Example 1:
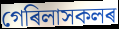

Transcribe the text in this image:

গেৰিলাসকলৰ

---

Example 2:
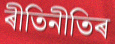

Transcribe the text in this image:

ৰীতিনীতিৰ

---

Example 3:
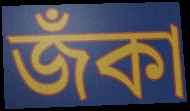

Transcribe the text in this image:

জঁকা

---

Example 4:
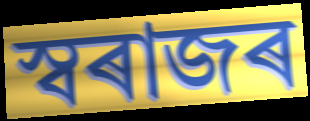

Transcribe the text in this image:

স্বৰাজৰ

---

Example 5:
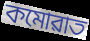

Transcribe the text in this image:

কমোৱাত